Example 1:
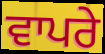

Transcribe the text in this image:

ਵਾਪਰੇ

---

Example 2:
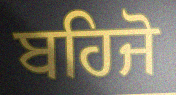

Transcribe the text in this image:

ਬਹਿਜੋ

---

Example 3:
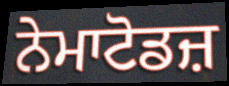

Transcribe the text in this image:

ਨੇਮਾਟੋਡਜ਼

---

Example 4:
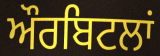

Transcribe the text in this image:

ਔਰਬਿਟਲਾਂ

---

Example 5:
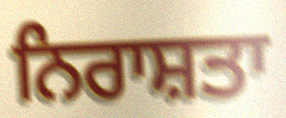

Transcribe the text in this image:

ਨਿਰਾਸ਼ਤਾ